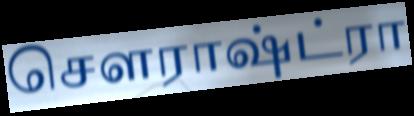
சௌராஷ்ட்ரா